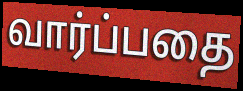
வார்ப்பதை